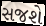
સજશે